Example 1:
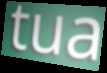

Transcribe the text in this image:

tua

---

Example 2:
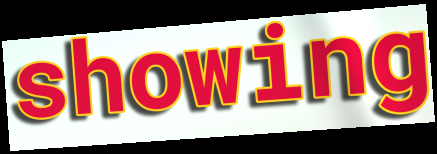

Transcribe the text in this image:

showing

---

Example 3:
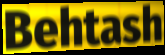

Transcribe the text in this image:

Behtash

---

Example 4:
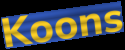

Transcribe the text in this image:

Koons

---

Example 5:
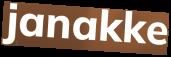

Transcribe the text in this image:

janakke